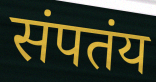
संपतंय